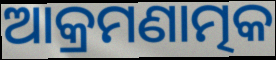
ଆକ୍ରମଣାତ୍ମକ